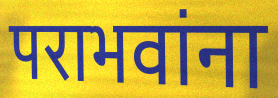
पराभवांना